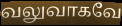
வலுவாகவே